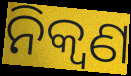
ନିକ୍ୱଣ